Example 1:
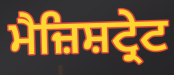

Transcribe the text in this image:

ਮੈਜ਼ਿਸ਼ਟ੍ਰੇਟ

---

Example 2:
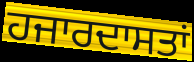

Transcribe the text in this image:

ਹਜਾਰਦਾਸਤਾਂ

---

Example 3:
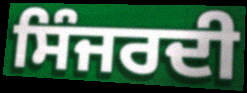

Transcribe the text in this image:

ਸਿੰਜਰਦੀ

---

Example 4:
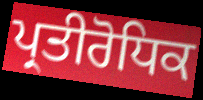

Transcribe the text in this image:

ਪ੍ਰਤੀਰੋਧਿਕ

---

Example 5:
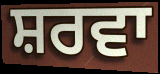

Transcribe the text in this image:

ਸ਼ਰਵਾ